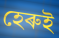
হেৰুই